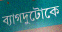
ব্যাগদুটোকে